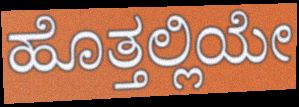
ಹೊತ್ತಲ್ಲಿಯೇ